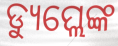
ଡ୍ୟୁପ୍ଲେଙ୍କ